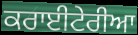
ਕਰਾਈਟੇਰੀਆ